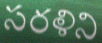
సరళిని